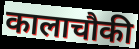
कालाचौकी